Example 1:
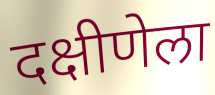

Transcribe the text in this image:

दक्षीणेला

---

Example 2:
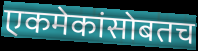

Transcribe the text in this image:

एकमेकांसोबतच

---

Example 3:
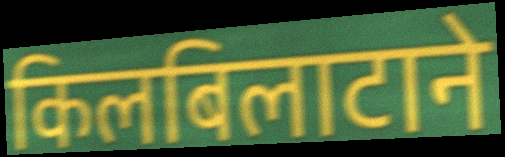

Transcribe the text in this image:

किलबिलाटाने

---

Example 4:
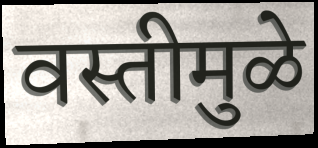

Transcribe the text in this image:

वस्तीमुळे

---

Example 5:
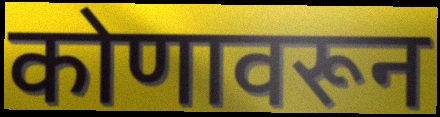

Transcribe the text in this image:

कोणावरून